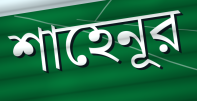
শাহেনূর